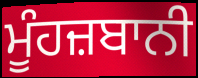
ਮੂੰਹਜ਼ਬਾਨੀ